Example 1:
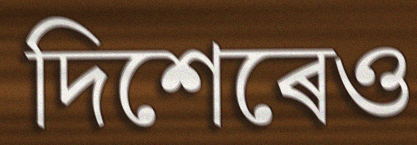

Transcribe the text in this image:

দিশেৰেও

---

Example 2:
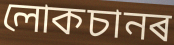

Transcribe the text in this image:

লোকচানৰ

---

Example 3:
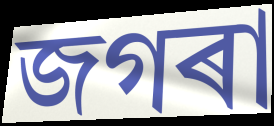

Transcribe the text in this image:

জগৰা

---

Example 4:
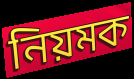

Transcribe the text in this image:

নিয়মক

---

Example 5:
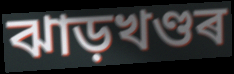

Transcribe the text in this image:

ঝাড়খণ্ডৰ